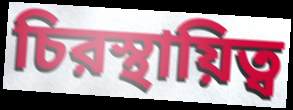
চিরস্থায়িত্ব